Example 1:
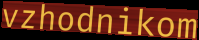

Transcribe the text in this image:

vzhodnikom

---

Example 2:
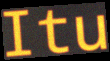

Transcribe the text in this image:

Itu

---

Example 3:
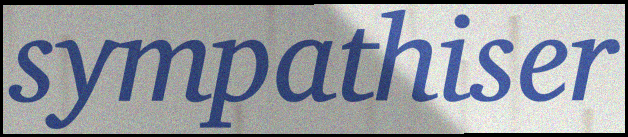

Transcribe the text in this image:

sympathiser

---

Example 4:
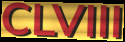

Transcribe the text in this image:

CLVIII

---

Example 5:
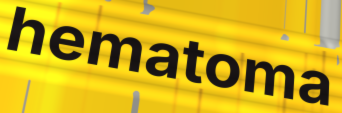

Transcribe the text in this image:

hematoma